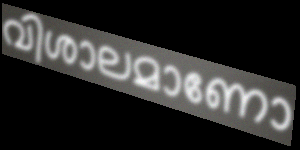
വിശാലമാണോ